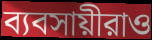
ব্যবসায়ীরাও